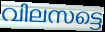
വിലസട്ടെ